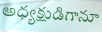
అధ్యక్షుడిగానూ